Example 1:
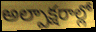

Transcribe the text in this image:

అల్పాక్షరాల్లో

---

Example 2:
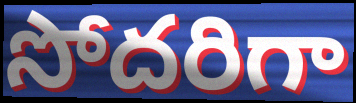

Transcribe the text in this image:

సోదరిగా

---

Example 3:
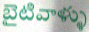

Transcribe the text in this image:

బైటివాళ్ళు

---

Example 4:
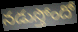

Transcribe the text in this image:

నడుస్తోందో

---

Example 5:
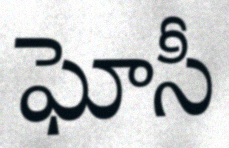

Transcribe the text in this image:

ఘోసీ